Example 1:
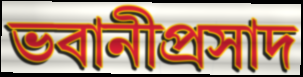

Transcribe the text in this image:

ভবানীপ্রসাদ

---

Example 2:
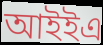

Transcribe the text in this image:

আইইএ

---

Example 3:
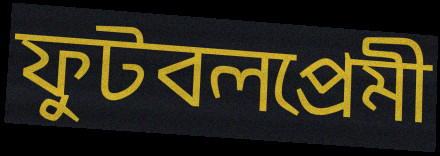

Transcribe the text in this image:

ফুটবলপ্রেমী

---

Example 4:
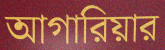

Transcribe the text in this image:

আগারিয়ার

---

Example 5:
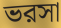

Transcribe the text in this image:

ভরসা